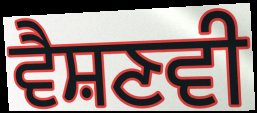
ਵੈਸ਼ਣਵੀ